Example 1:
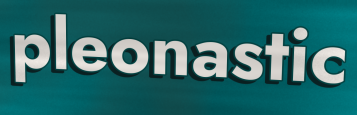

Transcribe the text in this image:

pleonastic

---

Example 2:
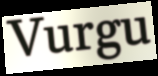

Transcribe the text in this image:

Vurgu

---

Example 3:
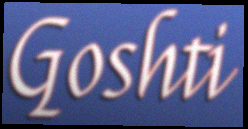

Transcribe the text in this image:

Goshti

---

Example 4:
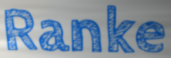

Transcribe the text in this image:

Ranke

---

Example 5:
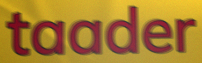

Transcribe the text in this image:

taader